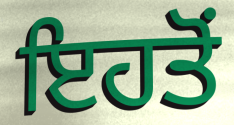
ਇਹਤੋਂ